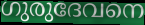
ഗുരുദേവനെ